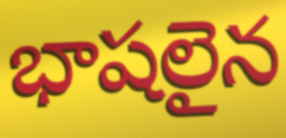
భాషలైన